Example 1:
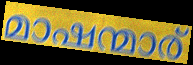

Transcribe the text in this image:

മാഷന്മാര്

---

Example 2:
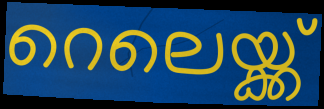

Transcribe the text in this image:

റെലെയ്ക്ക്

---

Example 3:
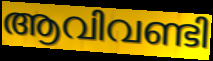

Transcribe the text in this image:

ആവിവണ്ടി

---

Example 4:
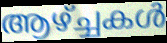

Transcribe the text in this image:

ആഴ്ച്ചകൾ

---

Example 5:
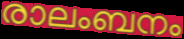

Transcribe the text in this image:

രാലംബനം